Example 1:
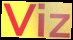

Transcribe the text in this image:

Viz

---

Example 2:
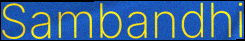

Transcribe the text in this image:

Sambandhi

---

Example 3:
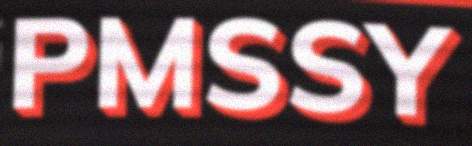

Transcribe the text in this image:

PMSSY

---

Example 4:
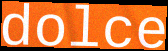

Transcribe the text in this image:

dolce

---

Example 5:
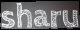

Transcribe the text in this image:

sharu